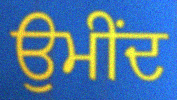
ਉਮੀਂਦ